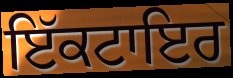
ਇੱਕਟਾਇਰ